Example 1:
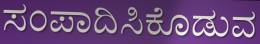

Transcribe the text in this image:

ಸಂಪಾದಿಸಿಕೊಡುವ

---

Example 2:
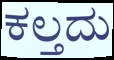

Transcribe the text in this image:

ಕಲ್ತದು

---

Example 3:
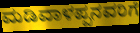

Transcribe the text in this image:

ಮಡಿವಾಳಪ್ಪನವರಿಗೆ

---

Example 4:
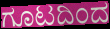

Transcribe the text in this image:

ಗೂಟದಿಂದ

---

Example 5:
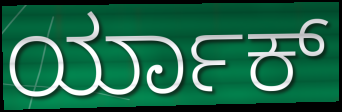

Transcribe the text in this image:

ರ್ಯಾಕ್